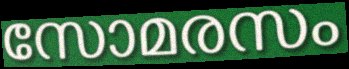
സോമരസം